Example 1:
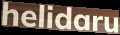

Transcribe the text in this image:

helidaru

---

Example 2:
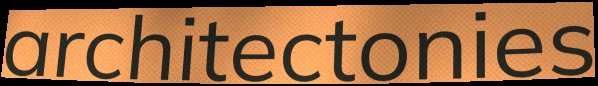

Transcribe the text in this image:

architectonies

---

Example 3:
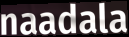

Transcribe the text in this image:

naadala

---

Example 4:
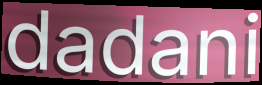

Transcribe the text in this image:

dadani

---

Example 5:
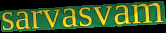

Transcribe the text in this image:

sarvasvam